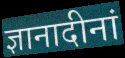
ज्ञानादीनां